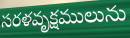
సరళవృక్షములును